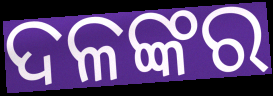
ଦଳଙ୍କର